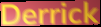
Derrick